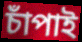
চাঁপাই